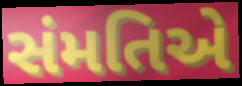
સંમતિએ